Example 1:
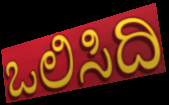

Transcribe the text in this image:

ಒಲಿಸಿದಿ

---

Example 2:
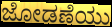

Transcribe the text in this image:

ಜೋಡಣೆಯು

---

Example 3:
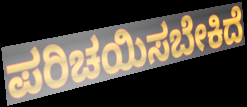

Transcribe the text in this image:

ಪರಿಚಯಿಸಬೇಕಿದೆ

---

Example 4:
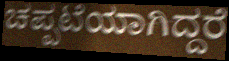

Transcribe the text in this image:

ಚಪ್ಪಟೆಯಾಗಿದ್ದರೆ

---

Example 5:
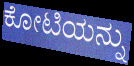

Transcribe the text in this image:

ಕೋಟಿಯನ್ನು